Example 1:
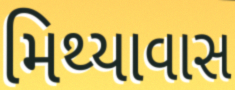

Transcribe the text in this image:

મિથ્યાવાસ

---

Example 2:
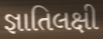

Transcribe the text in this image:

જ્ઞાતિલક્ષી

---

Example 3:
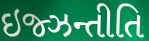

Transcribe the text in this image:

ઇજ્ઝન્તીતિ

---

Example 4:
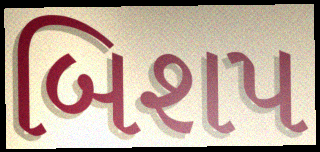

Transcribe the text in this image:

બિશપ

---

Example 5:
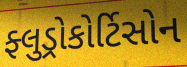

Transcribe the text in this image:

ફ્લુડ્રોકોર્ટિસોન